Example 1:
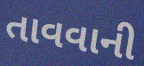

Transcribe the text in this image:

તાવવાની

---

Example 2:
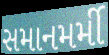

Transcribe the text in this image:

સમાનમર્મી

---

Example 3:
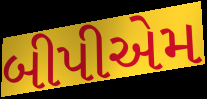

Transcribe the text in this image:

બીપીએમ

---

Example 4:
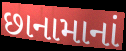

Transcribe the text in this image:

છાનામાનાં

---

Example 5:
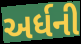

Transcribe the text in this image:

અર્ધની